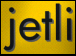
jetli